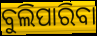
ବୁଲିପାରିବା